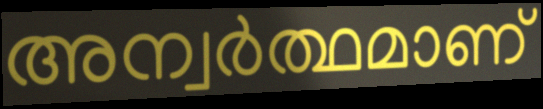
അന്വർത്ഥമാണ്